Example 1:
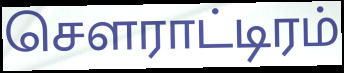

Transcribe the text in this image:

சௌராட்டிரம்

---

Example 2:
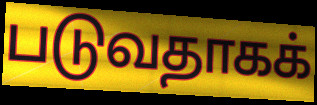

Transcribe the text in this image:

படுவதாகக்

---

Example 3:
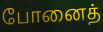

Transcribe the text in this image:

போனைத்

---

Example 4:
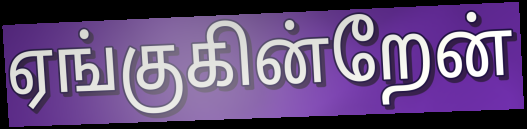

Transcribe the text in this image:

ஏங்குகின்றேன்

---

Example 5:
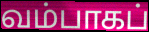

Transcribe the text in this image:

வம்பாகப்